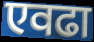
एवढा